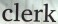
clerk